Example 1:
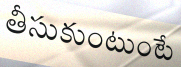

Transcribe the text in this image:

తీసుకుంటుంటే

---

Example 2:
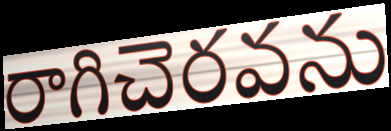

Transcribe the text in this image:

రాగిచెరవను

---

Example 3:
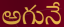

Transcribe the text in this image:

అగునే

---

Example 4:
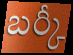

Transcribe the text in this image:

బర్కీ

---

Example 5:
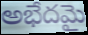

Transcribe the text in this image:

అభేదమై